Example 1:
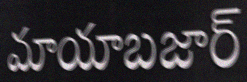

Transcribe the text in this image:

మాయాబజార్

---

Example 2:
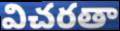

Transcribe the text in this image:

విచరతా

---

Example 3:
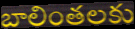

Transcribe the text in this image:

బాలింతలకు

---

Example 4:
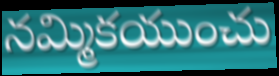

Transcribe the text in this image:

నమ్మికయుంచు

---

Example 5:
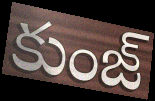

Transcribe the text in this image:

కుంజ్